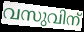
വസുവിന്